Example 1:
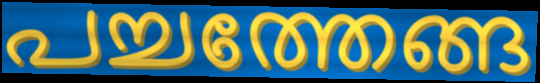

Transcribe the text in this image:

പച്ചത്തേങ്ങ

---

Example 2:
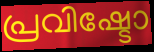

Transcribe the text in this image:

പ്രവിഷ്ടോ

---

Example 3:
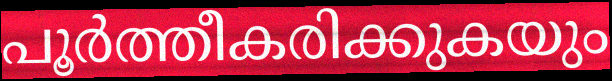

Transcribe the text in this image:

പൂർത്തീകരിക്കുകയും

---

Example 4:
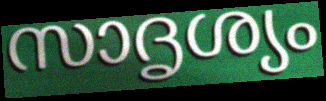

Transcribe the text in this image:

സാദൃശ്യം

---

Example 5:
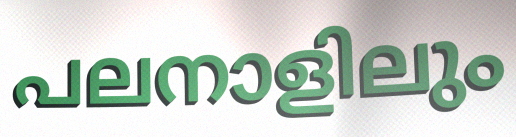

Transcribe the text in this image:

പലനാളിലും